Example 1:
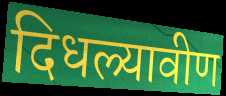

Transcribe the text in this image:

दिधल्यावीण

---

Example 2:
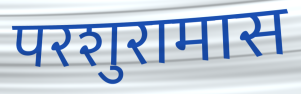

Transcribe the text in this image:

परशुरामास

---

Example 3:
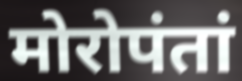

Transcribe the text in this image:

मोरोपंतां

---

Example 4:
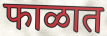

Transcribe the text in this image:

फाळात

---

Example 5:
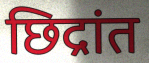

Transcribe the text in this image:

छिद्रांत